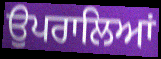
ਉਪਰਾਲਿਆਂ